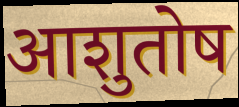
आशुतोष